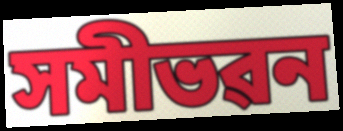
সমীভৱন